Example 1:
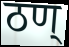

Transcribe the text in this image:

ठण्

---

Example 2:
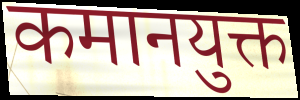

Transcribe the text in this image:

कमानयुक्त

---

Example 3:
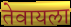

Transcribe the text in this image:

तेवायला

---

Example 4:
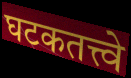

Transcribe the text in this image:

घटकतत्त्वे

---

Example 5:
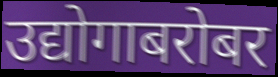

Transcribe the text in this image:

उद्योगाबरोबर